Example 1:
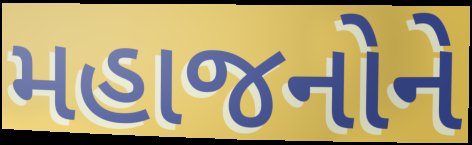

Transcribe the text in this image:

મહાજનોને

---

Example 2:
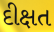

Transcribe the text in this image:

દીક્ષત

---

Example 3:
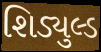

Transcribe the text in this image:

શિડ્યુલ્ડ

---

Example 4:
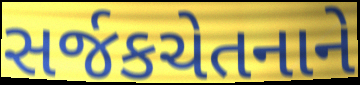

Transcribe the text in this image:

સર્જકચેતનાને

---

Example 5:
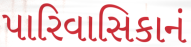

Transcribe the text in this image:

પારિવાસિકાનં